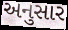
અનુસાર